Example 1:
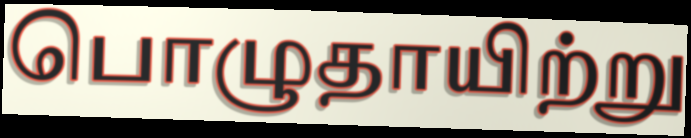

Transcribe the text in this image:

பொழுதாயிற்று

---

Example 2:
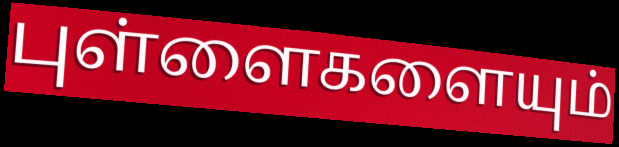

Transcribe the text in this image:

புள்ளைகளையும்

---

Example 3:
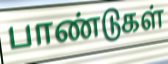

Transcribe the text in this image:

பாண்டுகள்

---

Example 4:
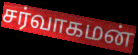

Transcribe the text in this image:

சர்வாகமன்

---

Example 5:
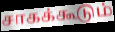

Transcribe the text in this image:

சாகக்கூடும்